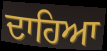
ਦਾਹਿਆ